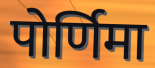
पोर्णिमा